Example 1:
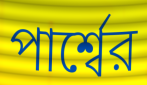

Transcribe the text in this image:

পার্শ্বের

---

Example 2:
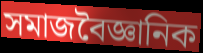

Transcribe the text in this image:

সমাজবৈজ্ঞানিক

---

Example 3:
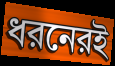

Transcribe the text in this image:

ধরনেরই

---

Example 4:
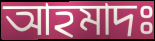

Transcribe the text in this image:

আহমাদঃ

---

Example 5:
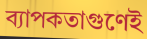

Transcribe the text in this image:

ব্যাপকতাগুণেই